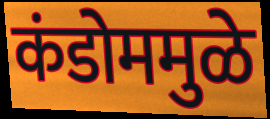
कंडोममुळे